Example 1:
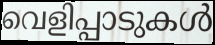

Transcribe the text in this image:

വെളിപ്പാടുകൾ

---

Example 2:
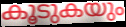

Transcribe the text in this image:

കൂടുകയും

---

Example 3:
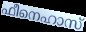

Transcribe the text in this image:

ഫീനെഹാസ്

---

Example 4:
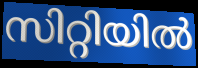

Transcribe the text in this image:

സിറ്റിയിൽ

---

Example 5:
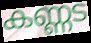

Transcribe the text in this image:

കണ്ണട